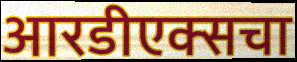
आरडीएक्सचा